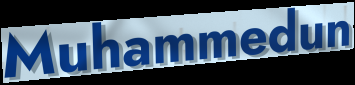
Muhammedun